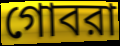
গোবরা